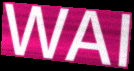
WAI